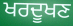
ਖਰਦੂਖਣ